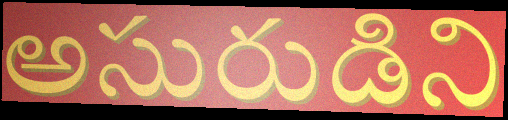
అసురుడిని